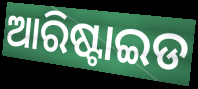
ଆରିଷ୍ଟାଇଡ